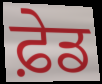
ਫ਼ੇਡ